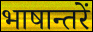
भाषान्तरें